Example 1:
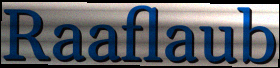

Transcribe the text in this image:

Raaflaub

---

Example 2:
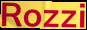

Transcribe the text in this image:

Rozzi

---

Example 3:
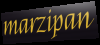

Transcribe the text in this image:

marzipan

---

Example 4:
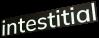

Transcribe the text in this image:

intestitial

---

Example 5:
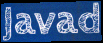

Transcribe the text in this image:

Javad